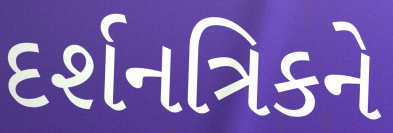
દર્શનત્રિકને